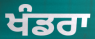
ਖੰਡਰਾ